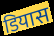
डियास